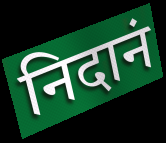
निदानं